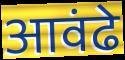
आवंढे